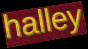
halley